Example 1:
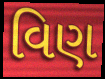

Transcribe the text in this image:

વિણ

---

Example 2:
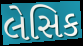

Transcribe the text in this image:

લેસિક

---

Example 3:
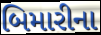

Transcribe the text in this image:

બિમારીના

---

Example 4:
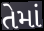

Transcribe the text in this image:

તેમાં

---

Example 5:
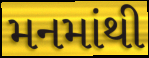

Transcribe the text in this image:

મનમાંથી